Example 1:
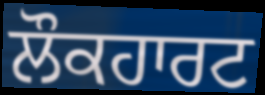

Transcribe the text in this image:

ਲੌਕਹਾਰਟ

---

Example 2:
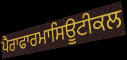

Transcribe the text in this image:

ਪੈਰਾਫਾਰਮਾਸਿਊਟੀਕਲ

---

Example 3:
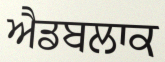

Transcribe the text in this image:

ਐਡਬਲਾਕ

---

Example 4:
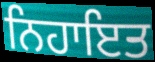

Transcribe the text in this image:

ਨਿਹਾਇਤ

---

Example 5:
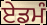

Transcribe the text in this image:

ਏਡਮੰ